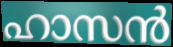
ഹാസൻ